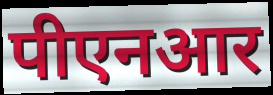
पीएनआर